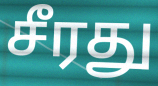
சீரது